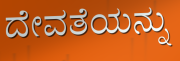
ದೇವತೆಯನ್ನು